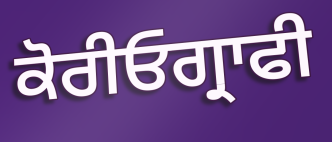
ਕੋਰੀਓਗ੍ਰਾਫੀ